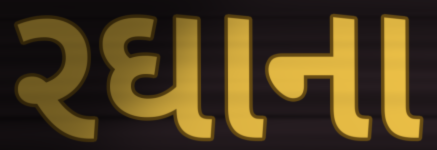
રઘાના